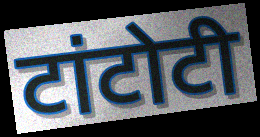
टांटोटी